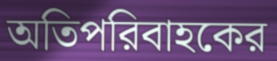
অতিপরিবাহকের